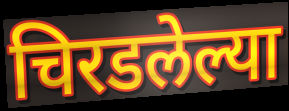
चिरडलेल्या